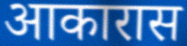
आकारास